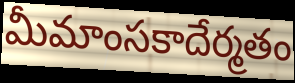
మీమాంసకాదేర్మతం